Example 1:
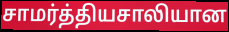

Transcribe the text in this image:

சாமர்த்தியசாலியான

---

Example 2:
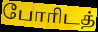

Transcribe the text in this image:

போரிடத்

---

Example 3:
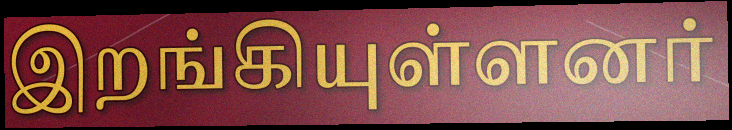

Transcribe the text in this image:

இறங்கியுள்ளனர்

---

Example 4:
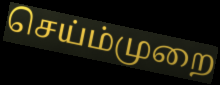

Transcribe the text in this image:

செய்ம்முறை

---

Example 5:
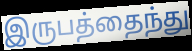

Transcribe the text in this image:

இருபத்தைந்து